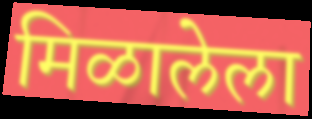
मिळालेला